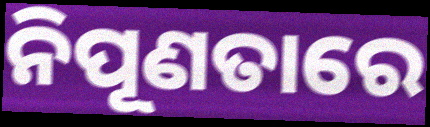
ନିପୂଣତାରେ